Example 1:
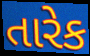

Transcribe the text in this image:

તારેક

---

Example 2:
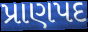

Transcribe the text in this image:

પ્રાણપદ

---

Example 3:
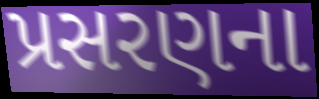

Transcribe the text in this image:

પ્રસરણના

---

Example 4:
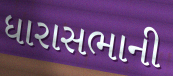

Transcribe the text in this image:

ધારાસભાની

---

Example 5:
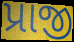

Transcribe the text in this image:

પ્રાજી